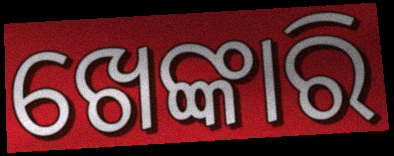
ଖେଙ୍କାରି